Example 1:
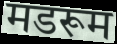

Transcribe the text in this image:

मडरूम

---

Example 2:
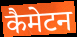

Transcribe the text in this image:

कैमेटन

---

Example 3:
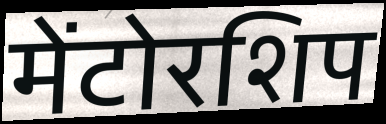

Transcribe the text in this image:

मेंटोरशिप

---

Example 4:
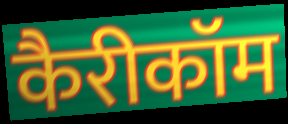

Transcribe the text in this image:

कैरीकॉम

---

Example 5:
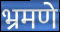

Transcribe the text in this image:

भ्रमणे